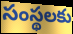
సంస్థలకు